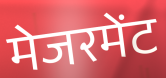
मेजरमेंट